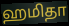
ஹமிதா